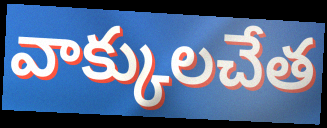
వాక్కులచేత